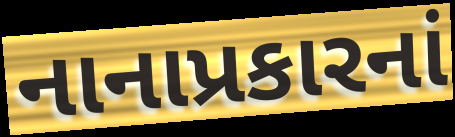
નાનાપ્રકારનાં